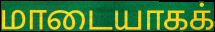
மாடையாகக்